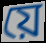
য়ে